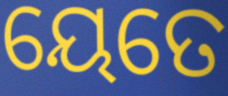
ୟେତେ